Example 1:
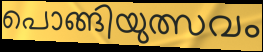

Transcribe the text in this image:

പൊങ്ങിയുത്സവം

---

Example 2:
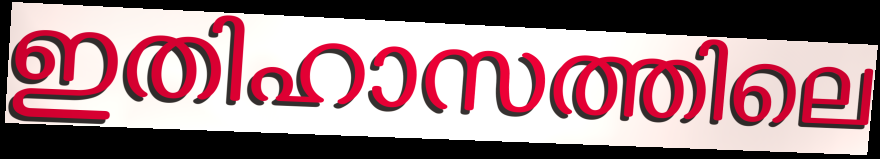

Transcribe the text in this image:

ഇതിഹാസത്തിലെ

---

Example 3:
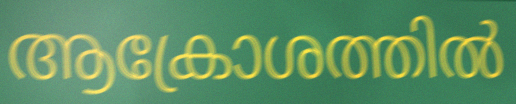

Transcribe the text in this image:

ആക്രോശത്തിൽ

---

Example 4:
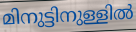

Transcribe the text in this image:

മിനുട്ടിനുള്ളിൽ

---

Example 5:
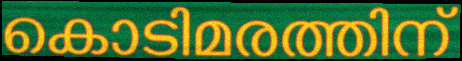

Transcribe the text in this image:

കൊടിമരത്തിന്